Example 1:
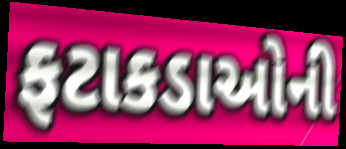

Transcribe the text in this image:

ફટાકડાઓની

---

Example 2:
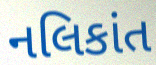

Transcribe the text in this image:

નલિકાંત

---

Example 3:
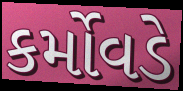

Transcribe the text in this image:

કર્મોવડે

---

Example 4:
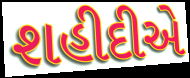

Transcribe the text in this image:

શહીદીએ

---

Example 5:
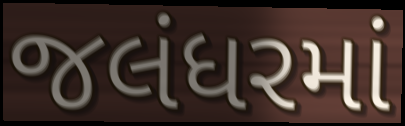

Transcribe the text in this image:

જલંધરમાં